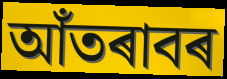
আঁতৰাবৰ